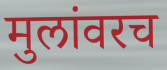
मुलांवरच